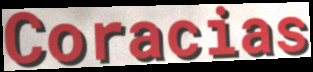
Coracias